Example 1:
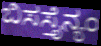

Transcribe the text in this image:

ಬಿಸಸ್ತೈನ್ಯಂ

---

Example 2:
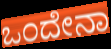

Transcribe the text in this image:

ಒಂದೇನಾ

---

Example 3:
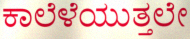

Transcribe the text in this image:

ಕಾಲೆಳೆಯುತ್ತಲೇ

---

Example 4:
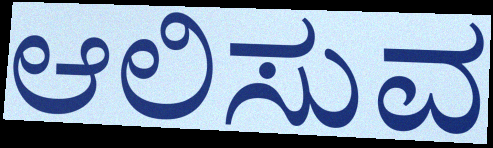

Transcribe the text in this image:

ಆಲಿಸುವ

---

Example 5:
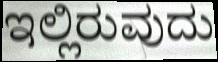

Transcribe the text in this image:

ಇಲ್ಲಿರುವುದು